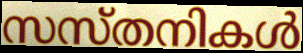
സസ്തനികൾ